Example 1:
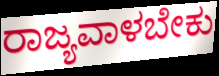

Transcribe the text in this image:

ರಾಜ್ಯವಾಳಬೇಕು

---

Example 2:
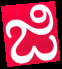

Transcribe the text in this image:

ಜಿ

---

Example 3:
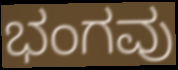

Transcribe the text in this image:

ಭಂಗವು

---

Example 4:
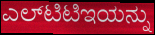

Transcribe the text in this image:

ಎಲ್‌ಟಿಟಿಇಯನ್ನು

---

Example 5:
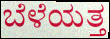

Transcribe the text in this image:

ಬೆಳೆಯತ್ತ